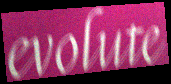
evolute